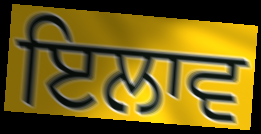
ਇਲਾਵ